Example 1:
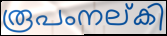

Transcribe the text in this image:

രൂപംനല്കി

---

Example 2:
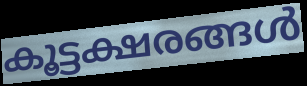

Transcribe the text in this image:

കൂട്ടക്ഷരങ്ങൾ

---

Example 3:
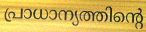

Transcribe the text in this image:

പ്രാധാന്യത്തിന്റെ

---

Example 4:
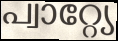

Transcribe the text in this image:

പ്വാറ്റ്യേ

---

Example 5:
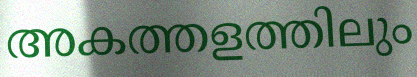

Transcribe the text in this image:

അകത്തളത്തിലും